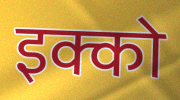
इक्को